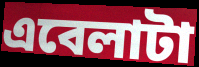
এবেলাটা